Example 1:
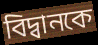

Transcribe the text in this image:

বিদ্বানকে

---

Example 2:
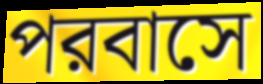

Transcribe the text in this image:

পরবাসে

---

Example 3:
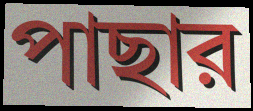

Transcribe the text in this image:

পাছার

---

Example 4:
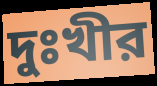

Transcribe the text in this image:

দুঃখীর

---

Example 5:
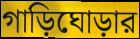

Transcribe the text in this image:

গাড়িঘোড়ার